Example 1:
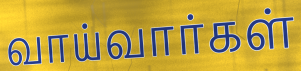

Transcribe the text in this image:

வாய்வார்கள்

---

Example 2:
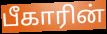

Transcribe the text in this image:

பீகாரின்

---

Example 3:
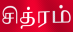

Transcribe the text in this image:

சித்ரம்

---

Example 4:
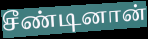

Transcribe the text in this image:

சீண்டினான்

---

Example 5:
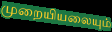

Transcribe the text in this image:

முறையியலையும்